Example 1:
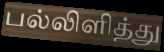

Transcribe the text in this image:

பல்லிளித்து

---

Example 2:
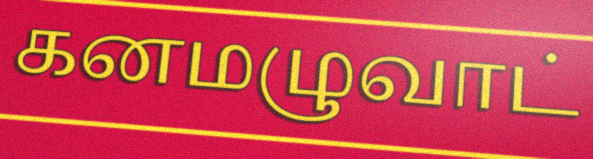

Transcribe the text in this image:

கனமழுவாட்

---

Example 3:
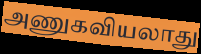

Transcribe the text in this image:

அணுகவியலாது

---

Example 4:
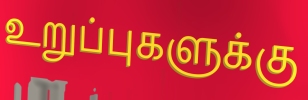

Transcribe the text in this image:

உறுப்புகளுக்கு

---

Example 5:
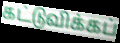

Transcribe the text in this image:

கட்டுவிக்கப்